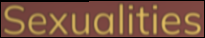
Sexualities